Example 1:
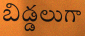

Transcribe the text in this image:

బిడ్డలుగా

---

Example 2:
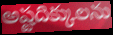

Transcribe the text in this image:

అష్టదిక్కులను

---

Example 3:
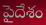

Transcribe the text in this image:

పైదేశం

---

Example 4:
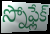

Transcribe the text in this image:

స్నోఫ్లేక్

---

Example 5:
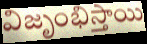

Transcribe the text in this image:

విజృంభిస్తాయి